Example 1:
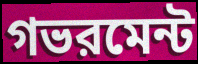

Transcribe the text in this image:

গভরমেন্ট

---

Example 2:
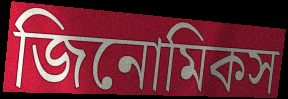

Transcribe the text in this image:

জিনোমিকস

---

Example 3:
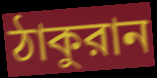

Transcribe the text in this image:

ঠাকুরান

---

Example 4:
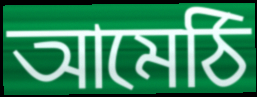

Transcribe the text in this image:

আমেঠি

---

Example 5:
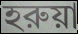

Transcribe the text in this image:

হরুয়া